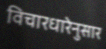
विचारधारेनुसार